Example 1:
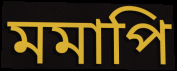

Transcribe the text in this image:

মমাপি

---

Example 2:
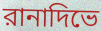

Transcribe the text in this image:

রানাদিভে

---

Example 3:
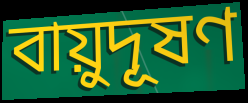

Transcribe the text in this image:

বায়ুদূষণ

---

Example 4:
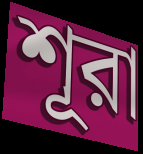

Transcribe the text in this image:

শূরা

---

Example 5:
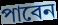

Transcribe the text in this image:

পাবেন